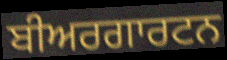
ਬੀਅਰਗਾਰਟਨ